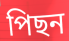
পিছন